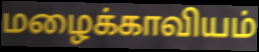
மழைக்காவியம்